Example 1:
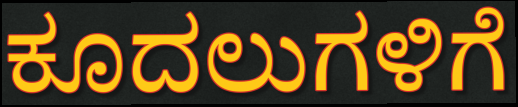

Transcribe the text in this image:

ಕೂದಲುಗಳಿಗೆ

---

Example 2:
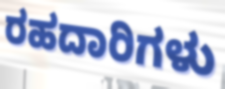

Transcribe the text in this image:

ರಹದಾರಿಗಳು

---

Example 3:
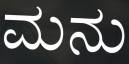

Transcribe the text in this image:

ಮನು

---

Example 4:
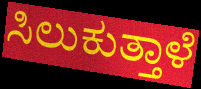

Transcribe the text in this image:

ಸಿಲುಕುತ್ತಾಳೆ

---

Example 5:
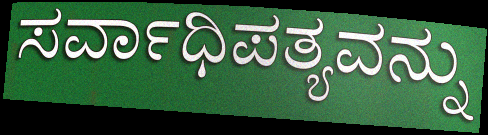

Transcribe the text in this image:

ಸರ್ವಾಧಿಪತ್ಯವನ್ನು